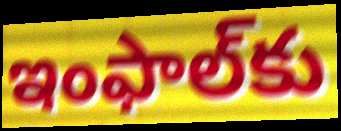
ఇంఫాల్‌కు